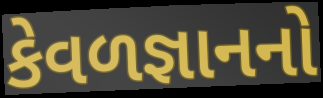
કેવળજ્ઞાનનો